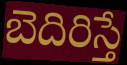
బెదిరిస్తే